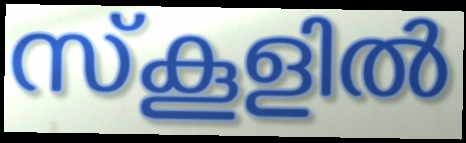
സ്‌കൂളിൽ